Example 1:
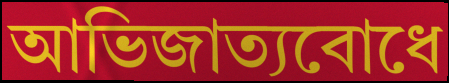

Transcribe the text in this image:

আভিজাত্যবোধে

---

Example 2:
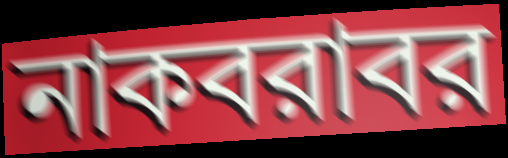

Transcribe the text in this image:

নাকবরাবর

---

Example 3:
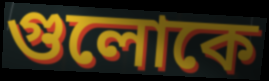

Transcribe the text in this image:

গুলোকে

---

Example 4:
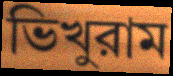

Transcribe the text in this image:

ভিখুরাম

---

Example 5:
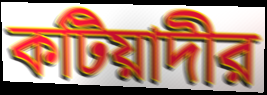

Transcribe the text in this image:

কটিয়াদীর